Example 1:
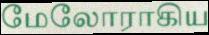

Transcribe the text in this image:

மேலோராகிய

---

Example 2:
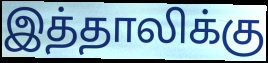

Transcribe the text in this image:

இத்தாலிக்கு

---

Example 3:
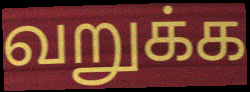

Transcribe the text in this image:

வறுக்க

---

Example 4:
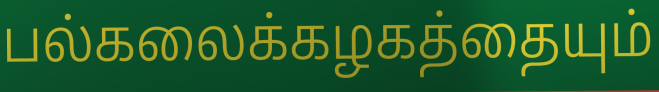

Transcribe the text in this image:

பல்கலைக்கழகத்தையும்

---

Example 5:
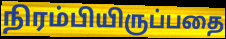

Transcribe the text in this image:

நிரம்பியிருப்பதை